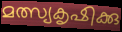
മത്സ്യകൃഷിക്കു